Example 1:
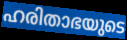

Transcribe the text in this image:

ഹരിതാഭയുടെ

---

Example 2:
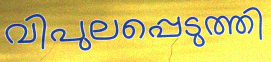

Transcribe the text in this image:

വിപുലപ്പെടുത്തി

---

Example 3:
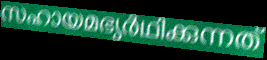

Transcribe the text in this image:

സഹായമഭ്യർഥിക്കുന്നത്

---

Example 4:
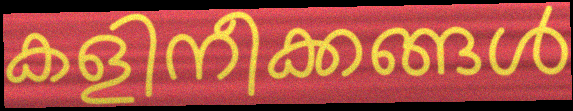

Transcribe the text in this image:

കളിനീക്കങ്ങൾ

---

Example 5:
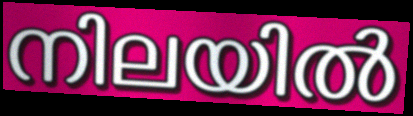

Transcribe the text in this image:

നിലയിൽ